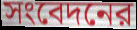
সংবেদনের